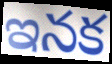
ఇనక